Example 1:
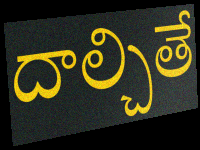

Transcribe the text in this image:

దాల్చితే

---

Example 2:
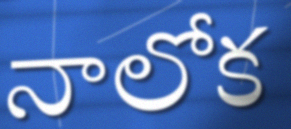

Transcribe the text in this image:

నాలోక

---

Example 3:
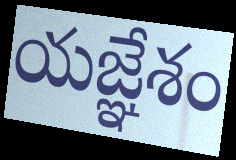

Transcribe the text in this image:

యజ్ఞేశం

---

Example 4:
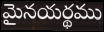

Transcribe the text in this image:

మైనయర్థము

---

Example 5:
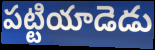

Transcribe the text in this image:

పట్టియాడెడు